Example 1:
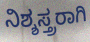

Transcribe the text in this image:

ನಿಶ್ಶಸ್ತ್ರರಾಗಿ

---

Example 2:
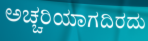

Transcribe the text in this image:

ಅಚ್ಚರಿಯಾಗದಿರದು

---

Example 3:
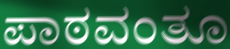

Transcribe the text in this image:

ಪಾಠವಂತೂ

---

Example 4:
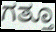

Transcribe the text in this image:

ಗತ್ತೂ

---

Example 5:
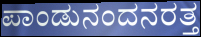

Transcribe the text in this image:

ಪಾಂಡುನಂದನರತ್ತ